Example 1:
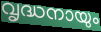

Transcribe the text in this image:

വൃദ്ധനായും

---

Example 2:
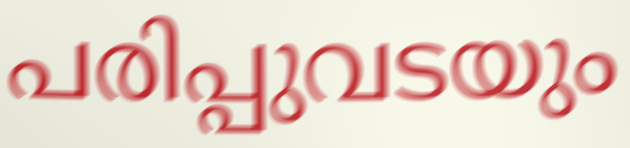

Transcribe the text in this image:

പരിപ്പുവടയും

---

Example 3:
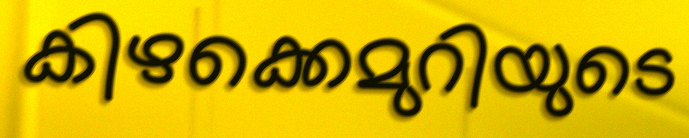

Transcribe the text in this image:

കിഴക്കെമുറിയുടെ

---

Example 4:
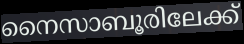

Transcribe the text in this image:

നൈസാബൂരിലേക്ക്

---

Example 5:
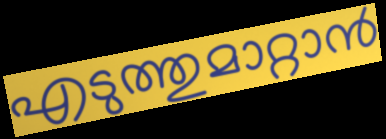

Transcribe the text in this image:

എടുത്തുമാറ്റാൻ